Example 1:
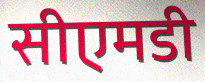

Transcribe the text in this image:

सीएमडी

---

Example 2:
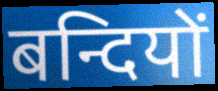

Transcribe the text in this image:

बन्दियों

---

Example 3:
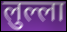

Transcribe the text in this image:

लुल्ला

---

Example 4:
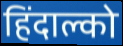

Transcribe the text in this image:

हिंदाल्को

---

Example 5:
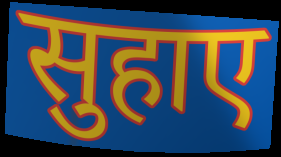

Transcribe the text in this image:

सुहाए